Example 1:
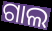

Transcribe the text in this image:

ଗାଲ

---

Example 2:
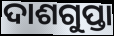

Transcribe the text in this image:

ଦାଶଗୁପ୍ତା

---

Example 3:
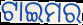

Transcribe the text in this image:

ଟାଇମର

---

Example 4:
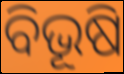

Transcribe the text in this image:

ବିଭୂଷି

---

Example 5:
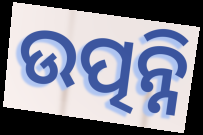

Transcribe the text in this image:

ଉତ୍ପନ୍ନି